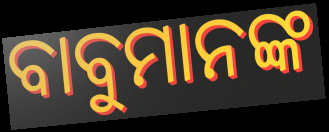
ବାବୁମାନଙ୍କ